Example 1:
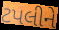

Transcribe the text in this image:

ટપલીને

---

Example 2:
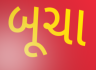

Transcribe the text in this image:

બૂચા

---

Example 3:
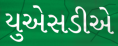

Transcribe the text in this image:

યુએસડીએ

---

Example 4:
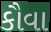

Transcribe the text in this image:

કૌવા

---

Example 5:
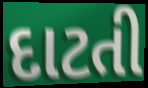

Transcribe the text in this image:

દાટતી